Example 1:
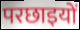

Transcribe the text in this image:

परछाइयों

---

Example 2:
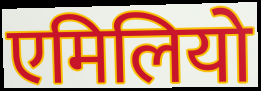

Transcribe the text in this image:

एमिलियो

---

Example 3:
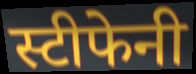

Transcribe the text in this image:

स्टीफेनी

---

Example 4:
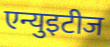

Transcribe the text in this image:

एन्युइटीज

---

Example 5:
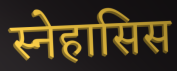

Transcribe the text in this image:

स्नेहासिस